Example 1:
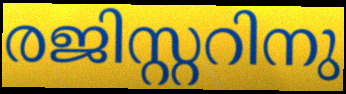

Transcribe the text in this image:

രജിസ്റ്ററിനു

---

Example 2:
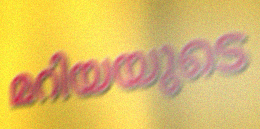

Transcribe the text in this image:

മറിയയുടെ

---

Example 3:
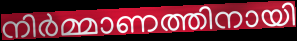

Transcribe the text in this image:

നിർമ്മാണത്തിനായി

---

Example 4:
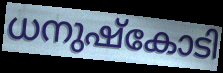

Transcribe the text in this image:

ധനുഷ്കോടി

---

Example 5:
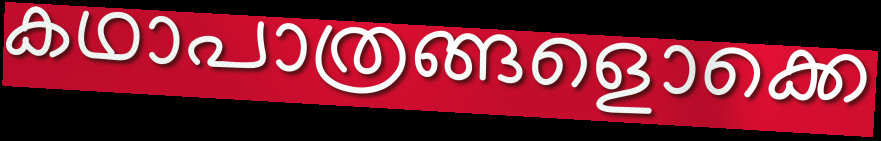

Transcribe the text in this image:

കഥാപാത്രങ്ങളൊക്കെ